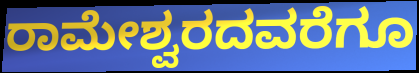
ರಾಮೇಶ್ವರದವರೆಗೂ